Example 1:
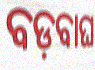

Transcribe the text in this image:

ବଡ଼ବାଘ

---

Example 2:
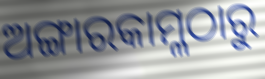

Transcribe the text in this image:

ଅଙ୍ଗାରକାମ୍ଳଠାରୁ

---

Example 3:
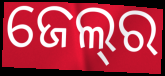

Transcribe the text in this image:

ଜେଲ୍‍ର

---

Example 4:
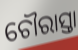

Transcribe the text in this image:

ଚୌରାସ୍ତା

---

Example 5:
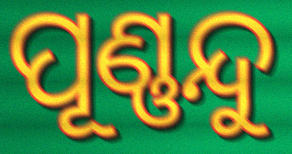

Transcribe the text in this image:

ପୂଣ୍ଣନ୍ଦୁ